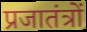
प्रजातंत्रों